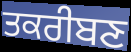
ਤਕਰੀਬਣ